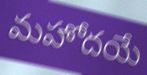
మహోదయే